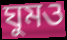
ঘুমও